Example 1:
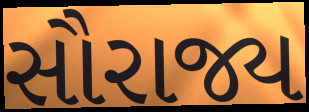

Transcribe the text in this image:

સૌરાજ્ય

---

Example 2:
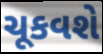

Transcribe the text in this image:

ચૂકવશે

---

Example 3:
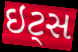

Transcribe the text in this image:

ઇટ્સ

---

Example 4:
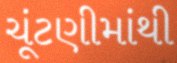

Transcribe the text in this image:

ચૂંટણીમાંથી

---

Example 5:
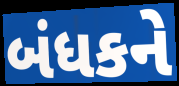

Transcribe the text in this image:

બંધકને